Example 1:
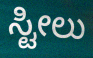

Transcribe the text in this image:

ಸ್ಟೀಲು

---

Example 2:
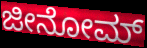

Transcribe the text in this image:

ಜೀನೋಮ್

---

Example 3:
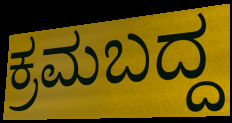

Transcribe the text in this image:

ಕ್ರಮಬದ್ದ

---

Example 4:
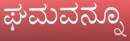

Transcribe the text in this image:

ಘಮವನ್ನೂ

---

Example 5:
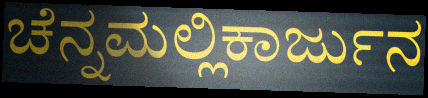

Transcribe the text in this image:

ಚೆನ್ನಮಲ್ಲಿಕಾರ್ಜುನ